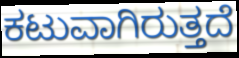
ಕಟುವಾಗಿರುತ್ತದೆ